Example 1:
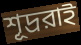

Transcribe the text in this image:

শূদ্ররাই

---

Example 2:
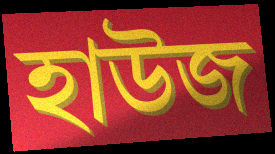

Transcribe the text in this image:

হাউজ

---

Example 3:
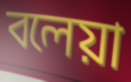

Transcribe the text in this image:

বলেয়া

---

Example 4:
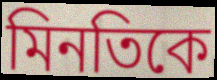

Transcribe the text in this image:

মিনতিকে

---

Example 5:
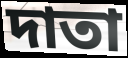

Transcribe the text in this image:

দাতা